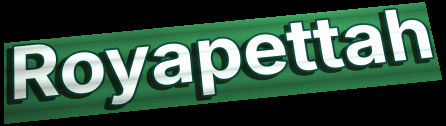
Royapettah